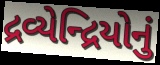
દ્રવ્યેન્દ્રિયોનું